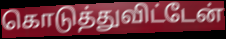
கொடுத்துவிட்டேன்